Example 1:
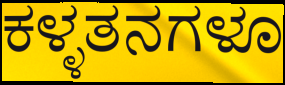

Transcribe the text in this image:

ಕಳ್ಳತನಗಳೂ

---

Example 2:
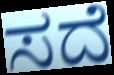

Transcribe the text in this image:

ಸದೆ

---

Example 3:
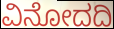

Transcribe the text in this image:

ವಿನೋದದಿ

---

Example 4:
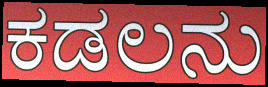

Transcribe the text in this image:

ಕಡಲನು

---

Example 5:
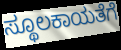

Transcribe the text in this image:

ಸ್ಥೂಲಕಾಯತೆಗೆ